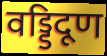
वड्डिदूण